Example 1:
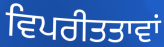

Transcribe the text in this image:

ਵਿਪਰੀਤਤਾਵਾਂ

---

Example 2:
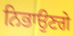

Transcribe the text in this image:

ਨਿਭਾਉਣਗੇ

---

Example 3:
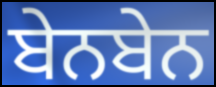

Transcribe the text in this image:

ਬੇਨਬੇਨ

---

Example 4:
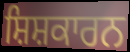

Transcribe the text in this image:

ਸ਼ਿਸ਼ਕਾਰਨ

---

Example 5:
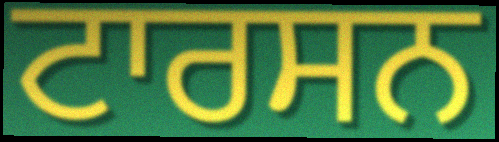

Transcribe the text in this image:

ਟਾਰਸਨ